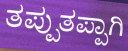
ತಪ್ಪುತಪ್ಪಾಗಿ